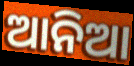
ଆନିଆ